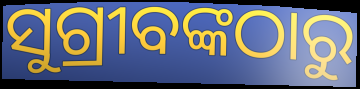
ସୁଗ୍ରୀବଙ୍କଠାରୁ